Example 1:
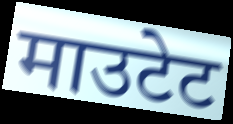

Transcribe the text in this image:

माउटेट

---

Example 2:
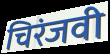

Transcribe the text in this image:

चिरंजवी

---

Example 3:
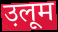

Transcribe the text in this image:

उ़लूम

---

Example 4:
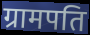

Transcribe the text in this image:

ग्रामपति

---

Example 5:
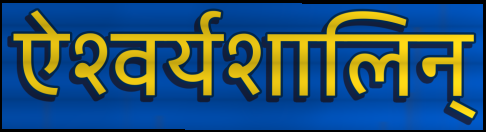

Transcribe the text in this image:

ऐश्वर्यशालिन्